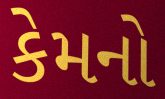
કેમનો